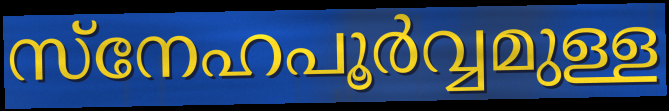
സ്നേഹപൂർവ്വമുള്ള